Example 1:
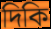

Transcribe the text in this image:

দিকি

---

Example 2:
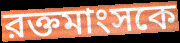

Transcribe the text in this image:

রক্তমাংসকে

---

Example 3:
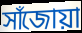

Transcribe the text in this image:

সাঁজোয়া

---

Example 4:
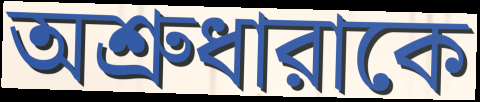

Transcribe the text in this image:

অশ্রুধারাকে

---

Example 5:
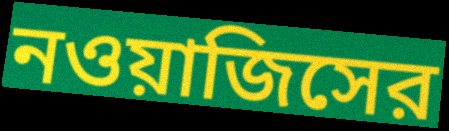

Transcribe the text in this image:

নওয়াজিসের